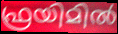
ഫ്രയിമിൽ